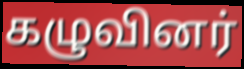
கழுவினர்